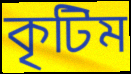
কৃটিম